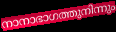
നാനാഭാഗത്തുനിന്നും